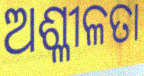
ଅଶ୍ଳୀଳତା